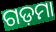
ଗଡ଼ମା